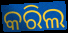
କରିଲ